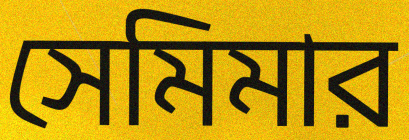
সেমিমার